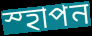
স্হাপন